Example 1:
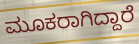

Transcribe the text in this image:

ಮೂಕರಾಗಿದ್ದಾರೆ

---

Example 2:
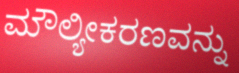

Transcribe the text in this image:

ಮೌಲ್ಯೀಕರಣವನ್ನು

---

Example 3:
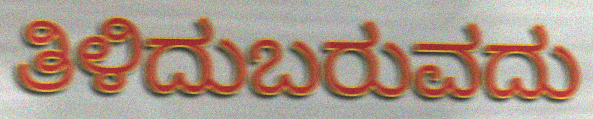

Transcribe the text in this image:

ತಿಳಿದುಬರುವದು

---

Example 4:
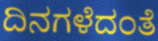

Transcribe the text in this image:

ದಿನಗಳೆದಂತೆ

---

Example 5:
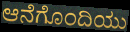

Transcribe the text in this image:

ಆನೆಗೊಂದಿಯು